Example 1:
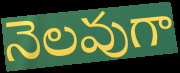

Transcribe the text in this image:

నెలవుగా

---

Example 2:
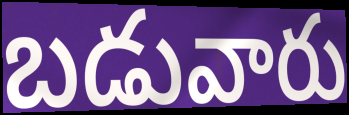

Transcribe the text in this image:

బడువారు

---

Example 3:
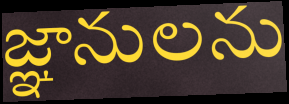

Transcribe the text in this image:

జ్ఞానులను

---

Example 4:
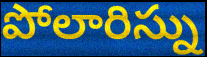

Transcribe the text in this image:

పోలారిస్ను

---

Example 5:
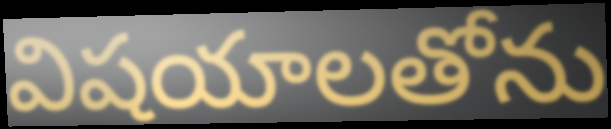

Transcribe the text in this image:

విషయాలతోను